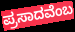
ಪ್ರಸಾದವೆಂಬ